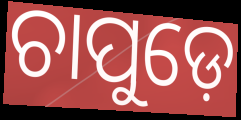
ଚାପୁଡ଼େ